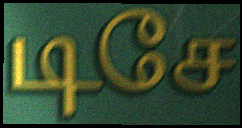
டிசே